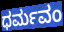
ಧರ್ಮವಂ